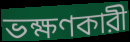
ভক্ষণকারী